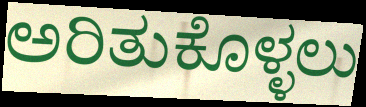
ಅರಿತುಕೊಳ್ಳಲು